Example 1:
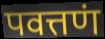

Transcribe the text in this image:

पवत्तणं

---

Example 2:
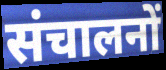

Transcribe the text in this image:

संचालनों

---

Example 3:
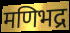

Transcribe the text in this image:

मणिभद्र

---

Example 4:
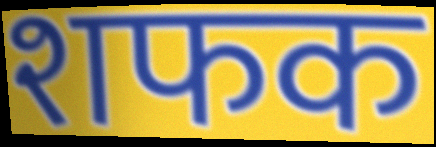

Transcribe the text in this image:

शफक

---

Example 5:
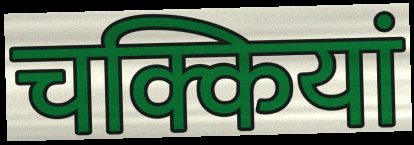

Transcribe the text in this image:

चक्कियां